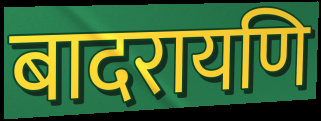
बादरायणि